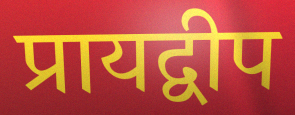
प्रायद्वीप